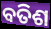
ବତିଶ